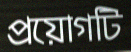
প্রয়োগটি